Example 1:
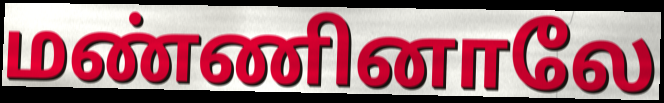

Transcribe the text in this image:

மண்ணினாலே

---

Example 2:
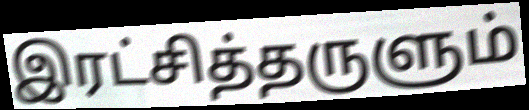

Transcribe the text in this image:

இரட்சித்தருளும்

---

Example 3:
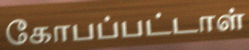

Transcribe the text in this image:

கோபப்பட்டாள்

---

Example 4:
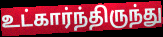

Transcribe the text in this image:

உட்கார்ந்திருந்து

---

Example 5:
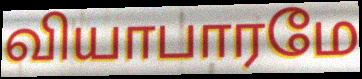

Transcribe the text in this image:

வியாபாரமே